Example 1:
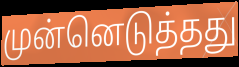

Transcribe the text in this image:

முன்னெடுத்தது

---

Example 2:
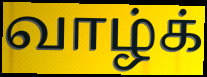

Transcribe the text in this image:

வாழ்க்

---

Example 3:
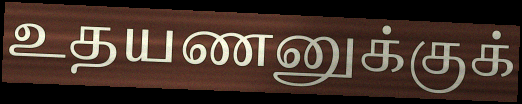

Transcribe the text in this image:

உதயணனுக்குக்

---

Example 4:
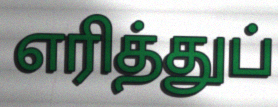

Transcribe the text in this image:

எரித்துப்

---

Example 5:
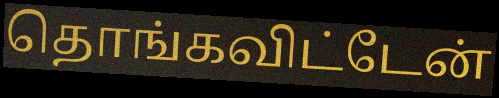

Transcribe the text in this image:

தொங்கவிட்டேன்